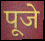
पूजे